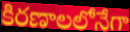
కిరణాలలోనేగా